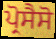
ਪ੍ਰੋਸੈਸੋ